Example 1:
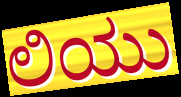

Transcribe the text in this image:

ಲಿಯು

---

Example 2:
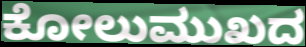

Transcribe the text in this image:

ಕೋಲುಮುಖದ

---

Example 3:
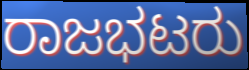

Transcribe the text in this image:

ರಾಜಭಟರು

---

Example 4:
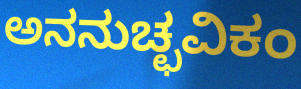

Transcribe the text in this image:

ಅನನುಚ್ಛವಿಕಂ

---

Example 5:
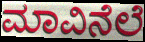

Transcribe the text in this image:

ಮಾವಿನೆಲೆ